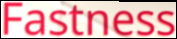
Fastness